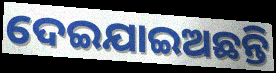
ଦେଇଯାଇଅଛନ୍ତି